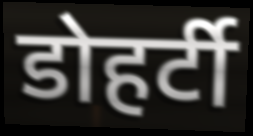
डोहर्टी